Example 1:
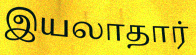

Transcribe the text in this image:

இயலாதார்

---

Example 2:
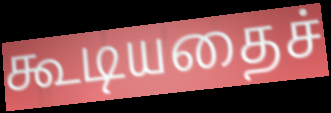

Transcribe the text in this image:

கூடியதைச்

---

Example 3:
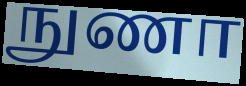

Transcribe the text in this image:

நுணா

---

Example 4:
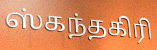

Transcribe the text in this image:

ஸ்கந்தகிரி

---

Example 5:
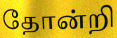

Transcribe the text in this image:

தோன்றி